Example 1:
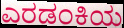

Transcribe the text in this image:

ಎರಡಂಕಿಯ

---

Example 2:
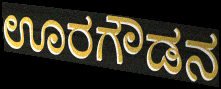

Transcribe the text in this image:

ಊರಗೌಡನ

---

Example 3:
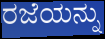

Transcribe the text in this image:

ರಜೆಯನ್ನು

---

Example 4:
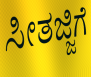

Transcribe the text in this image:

ಸೀತಜ್ಜಿಗೆ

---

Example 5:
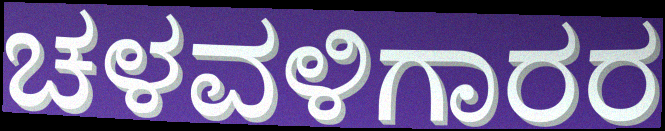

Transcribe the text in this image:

ಚಳವಳಿಗಾರರ